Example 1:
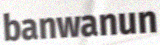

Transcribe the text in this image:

banwanun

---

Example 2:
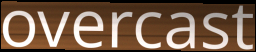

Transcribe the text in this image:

overcast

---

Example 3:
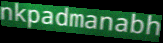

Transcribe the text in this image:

nkpadmanabh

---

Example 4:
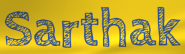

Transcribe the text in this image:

Sarthak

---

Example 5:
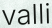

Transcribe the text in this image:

valli